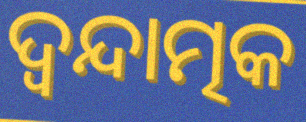
ଦ୍ୱନ୍ଦାତ୍ମକ